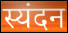
स्यंदन